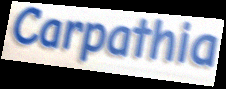
Carpathia